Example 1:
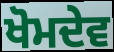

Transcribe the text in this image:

ਖੋਮਦੇਵ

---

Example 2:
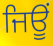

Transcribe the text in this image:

ਜਿਊਂ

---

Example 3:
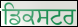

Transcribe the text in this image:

ਡਿਕਸਟਰ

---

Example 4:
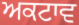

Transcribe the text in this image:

ਅਕਟਾਵ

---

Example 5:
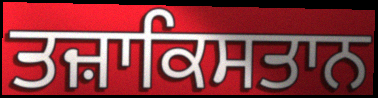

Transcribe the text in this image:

ਤਜ਼ਾਕਿਸਤਾਨ